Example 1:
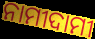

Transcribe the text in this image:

ନାମୀଦାମୀ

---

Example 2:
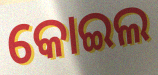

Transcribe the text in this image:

କୋଇଲ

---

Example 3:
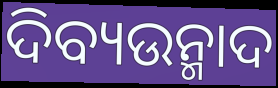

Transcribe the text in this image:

ଦିବ୍ୟଉନ୍ମାଦ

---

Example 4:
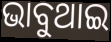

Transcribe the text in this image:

ଭାବୁଥାଇ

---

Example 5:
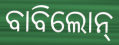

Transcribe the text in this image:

ବାବିଲୋନ୍